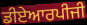
ਡੀਏਆਰਪੀਜੀ